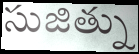
సుజిత్ను